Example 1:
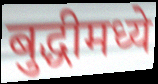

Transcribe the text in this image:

बुद्धीमध्ये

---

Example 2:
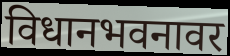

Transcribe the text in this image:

विधानभवनावर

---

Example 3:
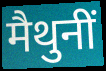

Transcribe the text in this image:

मैथुनीं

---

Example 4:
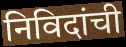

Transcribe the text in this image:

निविदांची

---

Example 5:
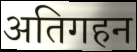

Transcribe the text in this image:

अतिगहन